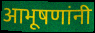
आभूषणांनी